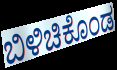
ಬಿಳಿಚಿಕೊಂಡ